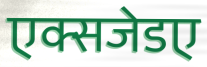
एक्सजेडए